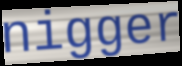
nigger